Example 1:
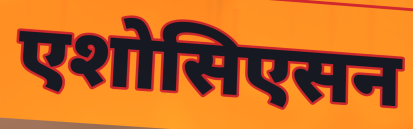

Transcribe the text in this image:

एशोसिएसन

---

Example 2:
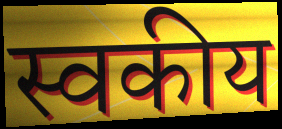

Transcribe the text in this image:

स्वकीय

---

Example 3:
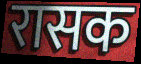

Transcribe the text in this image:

रासक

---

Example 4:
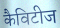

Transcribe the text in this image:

कैविटीज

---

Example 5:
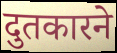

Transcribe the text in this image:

दुतकारने